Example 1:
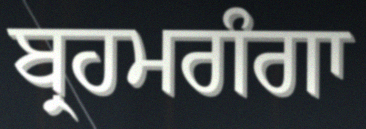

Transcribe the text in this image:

ਬ੍ਰਹਮਗੰਗਾ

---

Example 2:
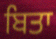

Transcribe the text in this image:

ਬਿਤਾ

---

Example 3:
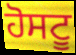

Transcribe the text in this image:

ਹੋਸਟੂ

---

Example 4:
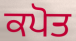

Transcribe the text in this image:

ਕਪੋਤ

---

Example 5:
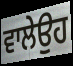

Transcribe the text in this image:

ਵਾਲੇਉਹ